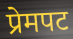
प्रेमपट